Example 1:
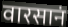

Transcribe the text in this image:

वारसानं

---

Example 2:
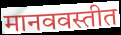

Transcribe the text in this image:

मानववस्तीत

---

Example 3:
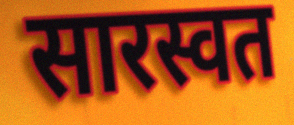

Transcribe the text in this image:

सारस्वत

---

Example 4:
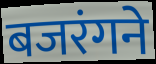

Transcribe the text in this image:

बजरंगने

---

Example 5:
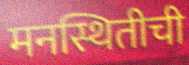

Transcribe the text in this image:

मनस्थितीची